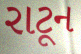
રાટૂન